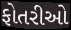
ફોતરીઓ